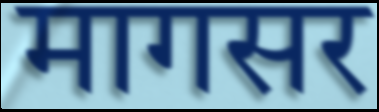
मागसर